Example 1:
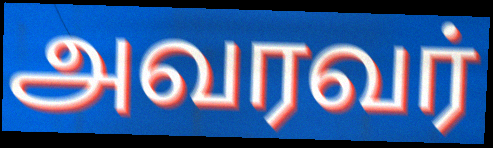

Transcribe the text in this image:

அவரவர்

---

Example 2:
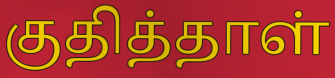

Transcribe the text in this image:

குதித்தாள்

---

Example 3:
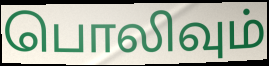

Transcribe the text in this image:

பொலிவும்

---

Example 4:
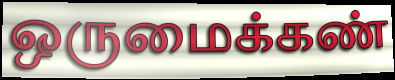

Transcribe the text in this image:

ஒருமைக்கண்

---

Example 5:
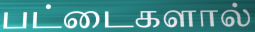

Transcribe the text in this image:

பட்டைகளால்